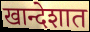
खान्देशात